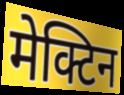
मेक्टिन